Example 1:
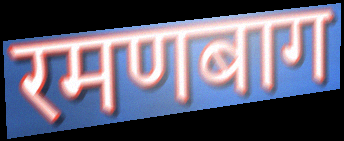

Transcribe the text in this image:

रमणबाग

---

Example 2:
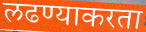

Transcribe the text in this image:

लढण्याकरता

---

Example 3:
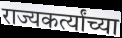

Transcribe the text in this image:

राज्यकर्त्यांच्या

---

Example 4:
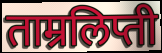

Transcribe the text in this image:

ताम्रलिप्ती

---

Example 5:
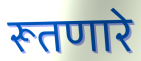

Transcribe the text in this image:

रूतणारे